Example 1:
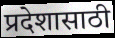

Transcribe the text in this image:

प्रदेशासाठी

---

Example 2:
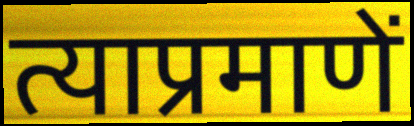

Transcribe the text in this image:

त्याप्रमाणें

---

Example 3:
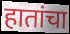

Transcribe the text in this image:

हातांचा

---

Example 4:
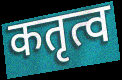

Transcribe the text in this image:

कतृत्व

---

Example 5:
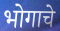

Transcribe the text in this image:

भोगाचे